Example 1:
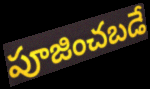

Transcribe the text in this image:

పూజించబడే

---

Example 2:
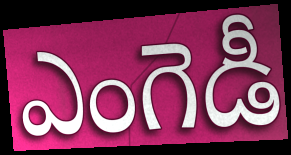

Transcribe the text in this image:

ఎంగెడీ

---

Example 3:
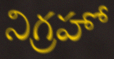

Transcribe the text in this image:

నిగ్రహో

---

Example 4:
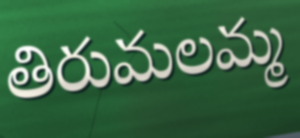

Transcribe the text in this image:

తిరుమలమ్మ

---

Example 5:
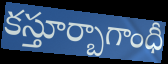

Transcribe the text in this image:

కస్తూర్బాగాంధీ